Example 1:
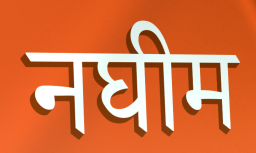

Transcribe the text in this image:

नघीम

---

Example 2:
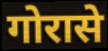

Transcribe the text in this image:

गोरासे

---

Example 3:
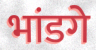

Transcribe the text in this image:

भांडगे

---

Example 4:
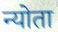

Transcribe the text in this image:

न्योता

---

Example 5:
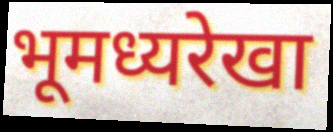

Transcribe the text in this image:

भूमध्यरेखा